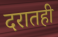
दरातही